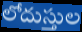
లోదుస్తుల